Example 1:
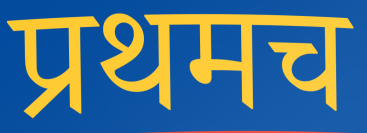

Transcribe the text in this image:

प्रथमच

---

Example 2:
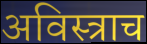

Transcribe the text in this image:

अविस्त्राच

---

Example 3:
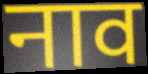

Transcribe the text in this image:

नाव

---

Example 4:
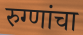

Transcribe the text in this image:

रुग्णांचा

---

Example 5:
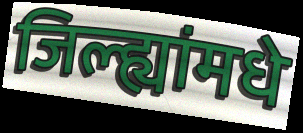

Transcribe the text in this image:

जिल्ह्यांमधे